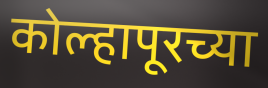
कोल्हापूरच्या